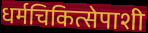
धर्मचिकित्सेपाशी